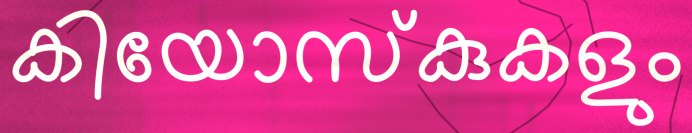
കിയോസ്കുകളും